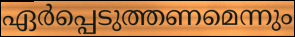
ഏർപ്പെടുത്തണമെന്നും